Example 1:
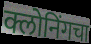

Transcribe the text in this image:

क्लोनिंगचा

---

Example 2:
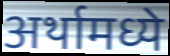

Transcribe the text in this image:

अर्थामध्ये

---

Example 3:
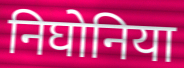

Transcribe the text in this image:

निघोनिया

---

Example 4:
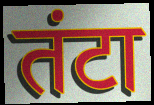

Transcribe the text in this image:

तंटा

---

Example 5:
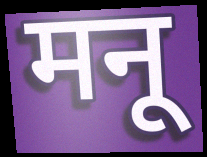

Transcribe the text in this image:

मनू